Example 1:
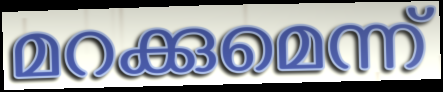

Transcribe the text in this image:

മറക്കുമെന്ന്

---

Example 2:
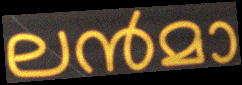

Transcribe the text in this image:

ലൻമാ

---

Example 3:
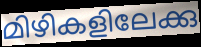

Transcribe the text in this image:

മിഴികളിലേക്കു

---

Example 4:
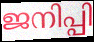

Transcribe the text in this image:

ജനിപ്പി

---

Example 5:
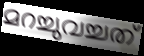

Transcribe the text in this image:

മറച്ചുവച്ചത്